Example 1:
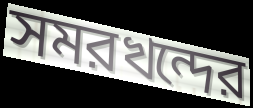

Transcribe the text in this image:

সমরখন্দের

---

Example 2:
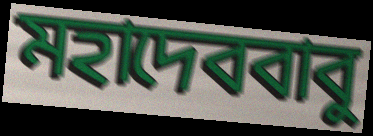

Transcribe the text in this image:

মহাদেববাবু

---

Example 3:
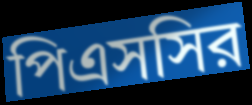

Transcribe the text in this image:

পিএসসির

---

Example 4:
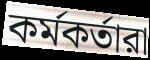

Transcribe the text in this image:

কর্মকর্তারা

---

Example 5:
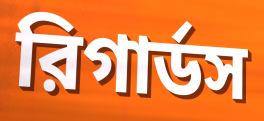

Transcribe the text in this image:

রিগার্ডস